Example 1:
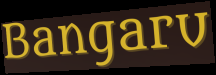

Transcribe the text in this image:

Bangaru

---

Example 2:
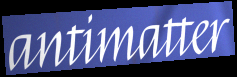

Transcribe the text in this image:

antimatter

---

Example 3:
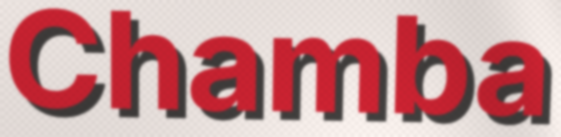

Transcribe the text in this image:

Chamba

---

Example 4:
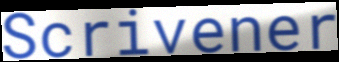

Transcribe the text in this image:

Scrivener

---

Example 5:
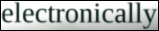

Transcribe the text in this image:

electronically